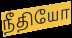
நீதியோ